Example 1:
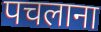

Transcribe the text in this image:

पचलाना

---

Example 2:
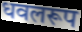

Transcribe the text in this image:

धवलरूप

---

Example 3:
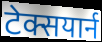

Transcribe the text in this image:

टेक्सयार्न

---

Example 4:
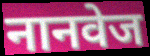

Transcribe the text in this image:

नानवेज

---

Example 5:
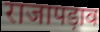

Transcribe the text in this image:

राजापड़ाव